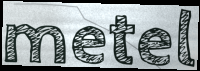
metel